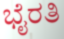
ಭೈರತಿ